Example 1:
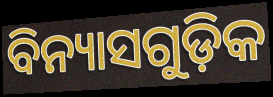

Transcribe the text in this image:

ବିନ୍ୟାସଗୁଡ଼ିକ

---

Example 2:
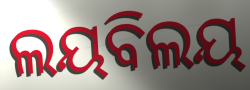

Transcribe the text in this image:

ଲୟବିଲୟ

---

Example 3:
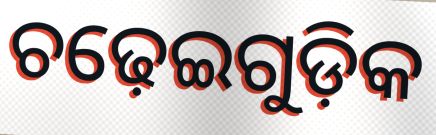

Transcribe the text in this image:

ଚଢ଼େଇଗୁଡ଼ିକ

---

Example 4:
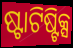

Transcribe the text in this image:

ଷ୍ଟାଟିଷ୍ଟିକ୍ସ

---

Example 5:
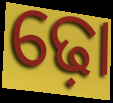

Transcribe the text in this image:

ଢ଼ୋ